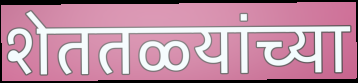
शेततळ्यांच्या